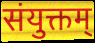
संयुक्तम्